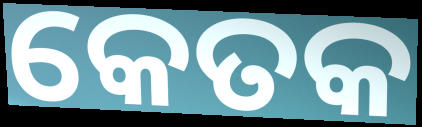
କେତକ